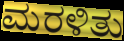
ಮರಳಿತು